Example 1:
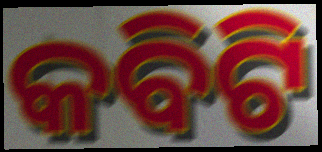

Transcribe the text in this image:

କବିଟି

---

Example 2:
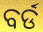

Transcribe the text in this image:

ବର୍ଡ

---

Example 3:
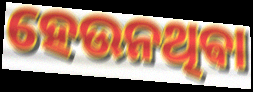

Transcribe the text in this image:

ହେଉନଥିଵା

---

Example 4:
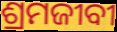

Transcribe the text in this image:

ଶ୍ରମଜୀବୀ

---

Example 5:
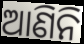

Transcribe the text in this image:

ଆଣିନି